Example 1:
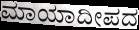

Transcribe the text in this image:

ಮಾಯಾದೀಪದ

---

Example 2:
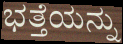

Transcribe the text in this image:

ಭತ್ತೆಯನ್ನು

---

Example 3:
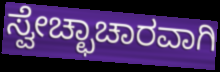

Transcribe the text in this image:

ಸ್ವೇಚ್ಛಾಚಾರವಾಗಿ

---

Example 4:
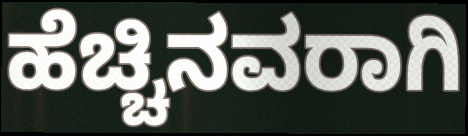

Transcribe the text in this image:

ಹೆಚ್ಚಿನವರಾಗಿ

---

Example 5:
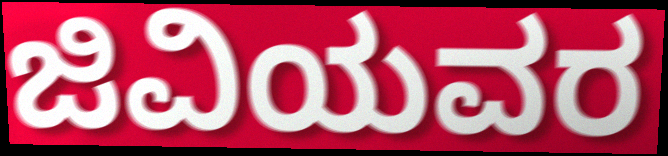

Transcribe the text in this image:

ಜಿವಿಯವರ